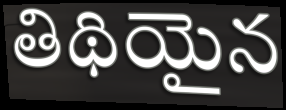
తిథియైన